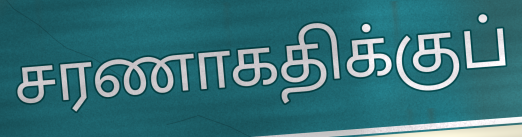
சரணாகதிக்குப்